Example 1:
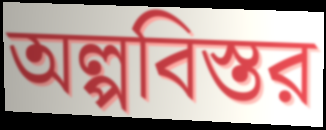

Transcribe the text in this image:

অল্পবিস্তর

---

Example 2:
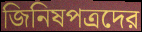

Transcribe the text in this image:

জিনিষপত্রদের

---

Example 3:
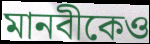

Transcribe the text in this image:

মানবীকেও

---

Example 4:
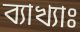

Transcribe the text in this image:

ব্যাখ্যাঃ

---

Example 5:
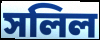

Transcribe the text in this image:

সলিল